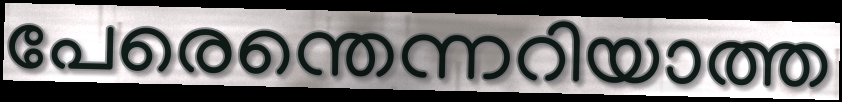
പേരെന്തെന്നറിയാത്ത